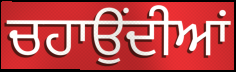
ਚਹਾਉਂਦੀਆਂ